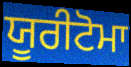
ਯੂਰੀਟੋਮਾ